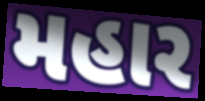
મહાર